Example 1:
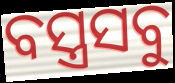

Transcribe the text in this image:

ବସ୍ତ୍ରସବୁ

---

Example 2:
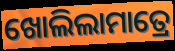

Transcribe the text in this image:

ଖୋଲିଲାମାତ୍ରେ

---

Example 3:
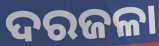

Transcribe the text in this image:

ଦରଜଳା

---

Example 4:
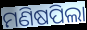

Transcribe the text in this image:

ମଣିଷପିଲା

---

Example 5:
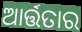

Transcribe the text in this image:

ଆର୍ତ୍ତତାର